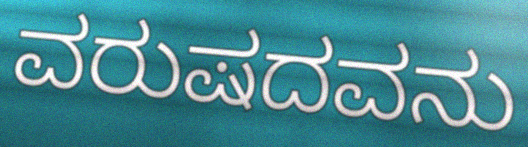
ವರುಷದವನು